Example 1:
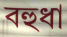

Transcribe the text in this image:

বহুধা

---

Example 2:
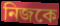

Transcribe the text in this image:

নিজকে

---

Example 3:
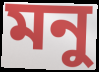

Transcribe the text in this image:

মনু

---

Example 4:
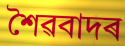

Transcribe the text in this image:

শৈৱবাদৰ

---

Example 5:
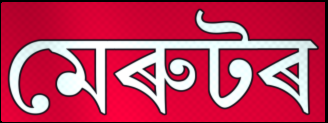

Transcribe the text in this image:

মেৰুটৰ